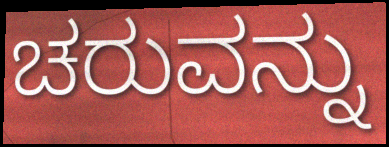
ಚರುವನ್ನು